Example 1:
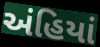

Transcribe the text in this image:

અંહિયાં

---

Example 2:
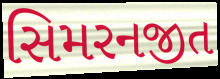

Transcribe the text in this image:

સિમરનજીત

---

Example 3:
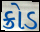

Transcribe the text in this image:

ક્રોડ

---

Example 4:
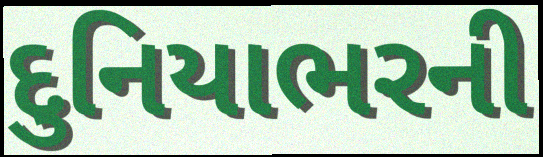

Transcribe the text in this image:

દુનિયાભરની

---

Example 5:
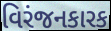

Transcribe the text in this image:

વિરંજનકારક